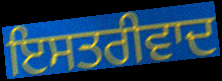
ਇਸਤਰੀਵਾਦ